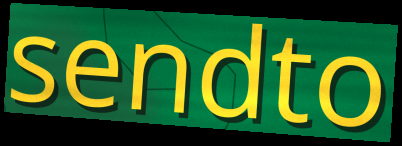
sendto